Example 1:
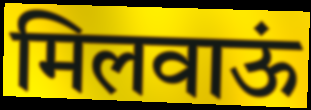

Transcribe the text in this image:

मिलवाऊं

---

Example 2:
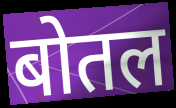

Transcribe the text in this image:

बोतल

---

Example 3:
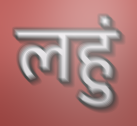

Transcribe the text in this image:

लहुं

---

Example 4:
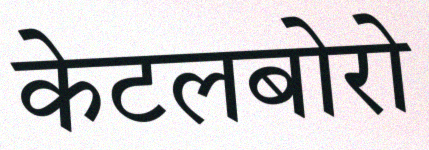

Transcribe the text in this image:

केटलबोरो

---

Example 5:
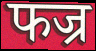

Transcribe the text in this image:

फज्र